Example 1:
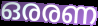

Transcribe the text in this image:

ഒരരണ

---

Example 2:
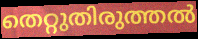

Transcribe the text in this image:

തെറ്റുതിരുത്തൽ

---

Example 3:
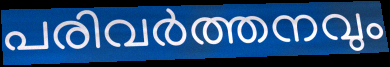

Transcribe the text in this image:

പരിവർത്തനവും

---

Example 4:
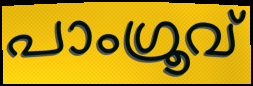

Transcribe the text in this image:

പാംഗ്രൂവ്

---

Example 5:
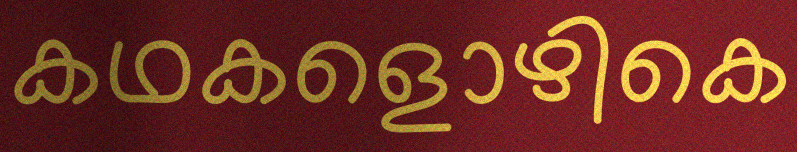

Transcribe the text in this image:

കഥകളൊഴികെ